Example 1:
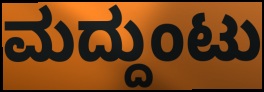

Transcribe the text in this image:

ಮದ್ದುಂಟು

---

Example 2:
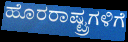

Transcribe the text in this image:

ಹೊರರಾಷ್ಟ್ರಗಳಿಗೆ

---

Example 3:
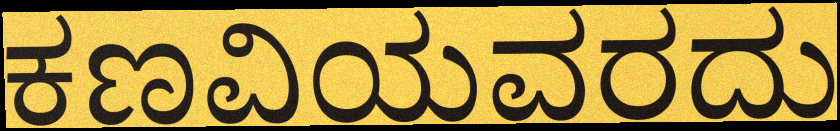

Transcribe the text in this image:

ಕಣವಿಯವರದು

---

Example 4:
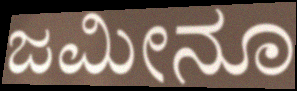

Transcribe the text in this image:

ಜಮೀನೂ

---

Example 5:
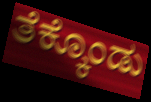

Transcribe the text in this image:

ತೆಕ್ಕೊಂಡು